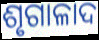
ଶୃଗାଳାଦ